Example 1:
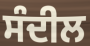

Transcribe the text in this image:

ਸੰਦੀਲ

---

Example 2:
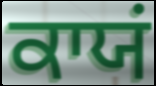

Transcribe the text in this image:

ਕਾਯਂ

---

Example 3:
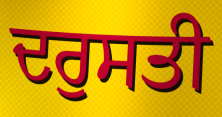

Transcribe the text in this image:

ਦਰੁਸਤੀ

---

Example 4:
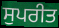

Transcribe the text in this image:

ਸੁਪਰੀਤ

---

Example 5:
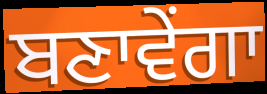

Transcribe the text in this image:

ਬਣਾਵੇਂਗਾ